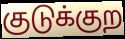
குடுக்குற